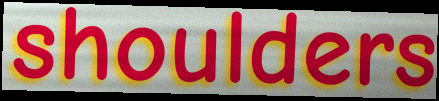
shoulders